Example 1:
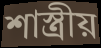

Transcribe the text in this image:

শাস্ত্ৰীয়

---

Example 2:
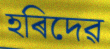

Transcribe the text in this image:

হৰিদেৱ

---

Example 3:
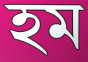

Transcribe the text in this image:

হম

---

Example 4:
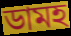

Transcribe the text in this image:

ডামহ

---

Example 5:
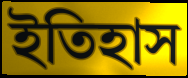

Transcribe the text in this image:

ইতিহাস